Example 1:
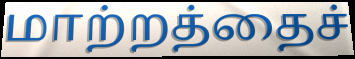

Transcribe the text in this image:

மாற்றத்தைச்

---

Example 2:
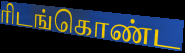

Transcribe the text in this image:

ரிடங்கொண்ட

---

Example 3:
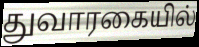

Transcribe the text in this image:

துவாரகையில்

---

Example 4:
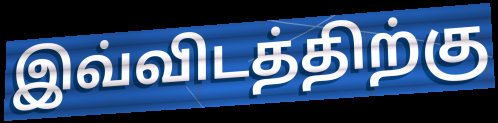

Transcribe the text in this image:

இவ்விடத்திற்கு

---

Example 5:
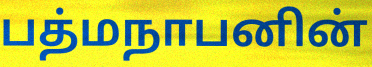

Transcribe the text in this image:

பத்மநாபனின்